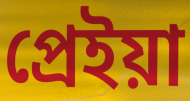
প্রেইয়া